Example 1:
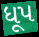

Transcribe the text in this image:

ધૂપ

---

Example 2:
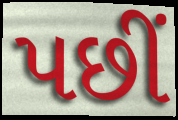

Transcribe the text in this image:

પછીં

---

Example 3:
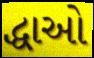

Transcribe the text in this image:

દ્ધાઓ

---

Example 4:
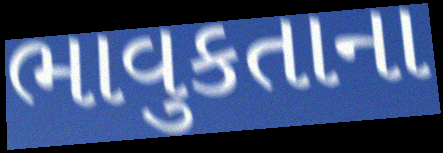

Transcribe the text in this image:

ભાવુકતાના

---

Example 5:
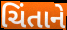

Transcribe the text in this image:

ચિંતાને